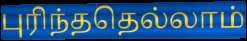
புரிந்ததெல்லாம்